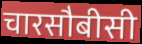
चारसौबीसी